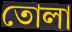
তোলা